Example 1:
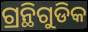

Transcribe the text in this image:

ଗ୍ରନ୍ଥିଗୁଡିକ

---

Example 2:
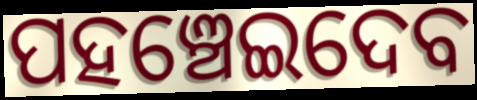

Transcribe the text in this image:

ପହଞ୍ଚେଇଦେବ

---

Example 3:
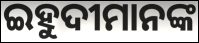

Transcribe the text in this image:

ଇହୁଦୀମାନଙ୍କ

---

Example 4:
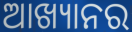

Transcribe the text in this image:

ଆଖ୍ୟାନର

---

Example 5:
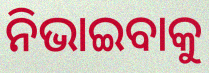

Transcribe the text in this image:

ନିଭାଇବାକୁ